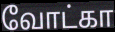
வோட்கா